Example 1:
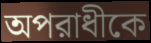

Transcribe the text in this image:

অপরাধীকে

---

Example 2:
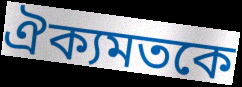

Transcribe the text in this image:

ঐক্যমতকে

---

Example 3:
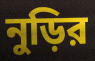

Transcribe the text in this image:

নুড়ির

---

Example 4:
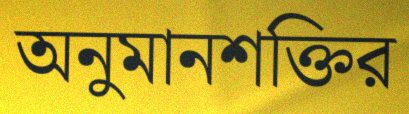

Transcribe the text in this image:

অনুমানশক্তির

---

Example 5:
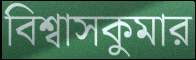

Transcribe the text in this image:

বিশ্বাসকুমার